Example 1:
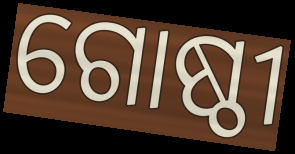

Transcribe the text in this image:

ଗୋଷ୍ଠୀ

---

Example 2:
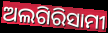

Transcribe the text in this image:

ଅଲଗିରିସାମୀ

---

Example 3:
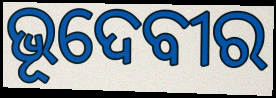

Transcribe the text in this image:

ଭୂଦେବୀର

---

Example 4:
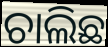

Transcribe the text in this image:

ଚାଲିଛ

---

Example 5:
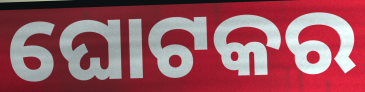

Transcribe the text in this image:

ଘୋଟକର